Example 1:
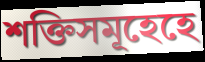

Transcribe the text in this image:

শক্তিসমূহেহে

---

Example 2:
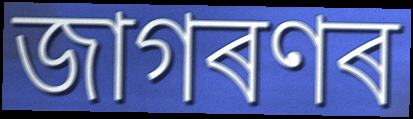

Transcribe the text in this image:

জাগৰণৰ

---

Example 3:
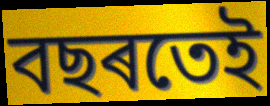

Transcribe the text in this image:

বছৰতেই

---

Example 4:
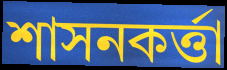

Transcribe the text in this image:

শাসনকৰ্ত্তা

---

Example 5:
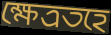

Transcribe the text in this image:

ক্ষেত্ৰতহে